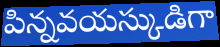
పిన్నవయస్కుడిగా